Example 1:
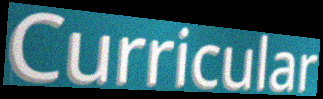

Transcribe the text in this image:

Curricular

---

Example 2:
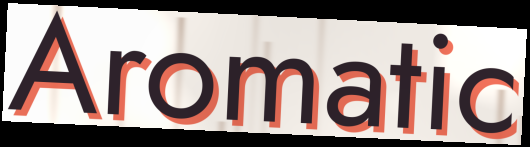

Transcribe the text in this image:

Aromatic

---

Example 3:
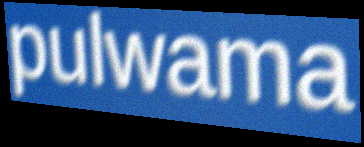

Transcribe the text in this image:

pulwama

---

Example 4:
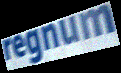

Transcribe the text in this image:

regnum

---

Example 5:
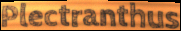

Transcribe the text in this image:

Plectranthus